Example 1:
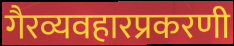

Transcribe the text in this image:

गैरव्यवहारप्रकरणी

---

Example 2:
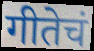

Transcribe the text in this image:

गीतेचं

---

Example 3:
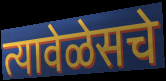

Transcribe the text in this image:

त्यावेळेसचे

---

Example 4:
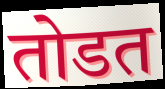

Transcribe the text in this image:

तोडत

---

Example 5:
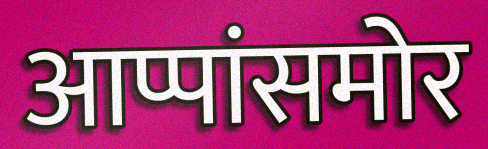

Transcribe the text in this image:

आप्पांसमोर